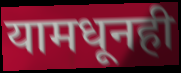
यामधूनही